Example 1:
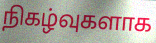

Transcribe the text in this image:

நிகழ்வுகளாக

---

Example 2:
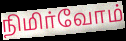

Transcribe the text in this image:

நிமிர்வோம்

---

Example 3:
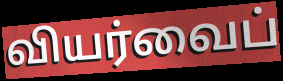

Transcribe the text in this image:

வியர்வைப்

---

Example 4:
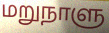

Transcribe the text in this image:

மறுநாளு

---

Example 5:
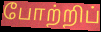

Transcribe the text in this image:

போற்றிப்